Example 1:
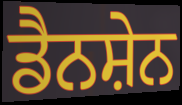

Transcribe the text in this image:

ਡੈਨਸ਼ੇਨ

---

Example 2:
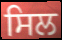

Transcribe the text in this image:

ਸਿਲ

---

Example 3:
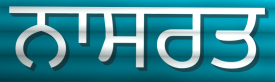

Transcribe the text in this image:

ਨਾਸਰਤ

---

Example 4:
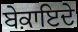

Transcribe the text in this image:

ਬੇਕ਼ਾਇਦੇ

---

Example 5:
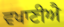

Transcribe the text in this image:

ਵਖਾਣੀਐ